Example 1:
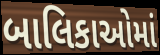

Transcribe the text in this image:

બાલિકાઓમાં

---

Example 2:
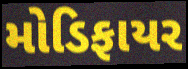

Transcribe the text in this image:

મોડિફાયર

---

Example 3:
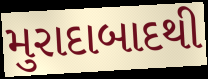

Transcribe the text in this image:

મુરાદાબાદથી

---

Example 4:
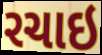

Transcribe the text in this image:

રચાઇ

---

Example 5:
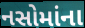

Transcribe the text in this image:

નસોમાંના